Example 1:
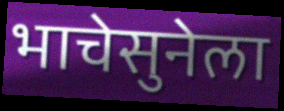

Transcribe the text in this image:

भाचेसुनेला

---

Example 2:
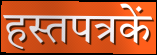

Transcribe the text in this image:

हस्तपत्रकें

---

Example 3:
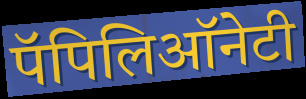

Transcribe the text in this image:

पॅपिलिऑनेटी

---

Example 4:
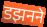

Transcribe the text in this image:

डझनने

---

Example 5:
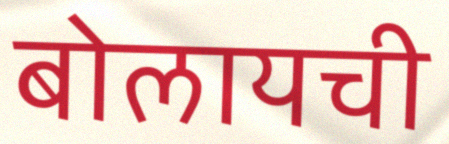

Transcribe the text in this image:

बोलायची